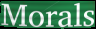
Morals